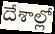
దేశాల్లో